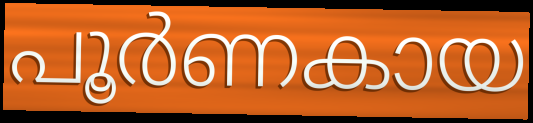
പൂർണകായ